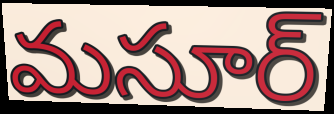
మసూర్